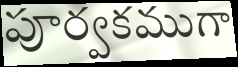
పూర్వకముగా